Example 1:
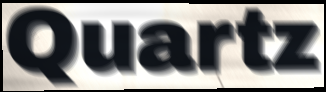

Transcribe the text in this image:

Quartz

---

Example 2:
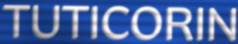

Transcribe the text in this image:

TUTICORIN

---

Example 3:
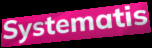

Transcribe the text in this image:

Systematis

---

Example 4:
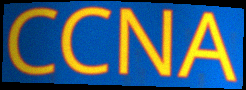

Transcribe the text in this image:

CCNA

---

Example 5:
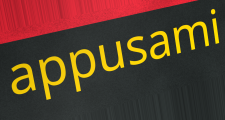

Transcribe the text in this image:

appusami